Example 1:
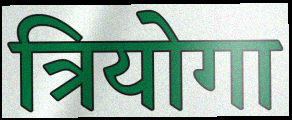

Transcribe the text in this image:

त्रियोगा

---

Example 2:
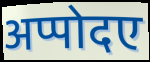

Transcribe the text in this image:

अप्पोदए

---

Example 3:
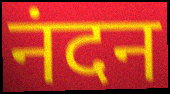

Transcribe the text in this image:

नंदन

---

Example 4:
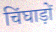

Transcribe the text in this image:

चिंघाड़ों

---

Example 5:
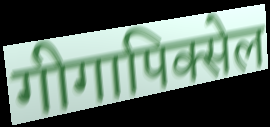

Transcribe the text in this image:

गीगापिक्सेल